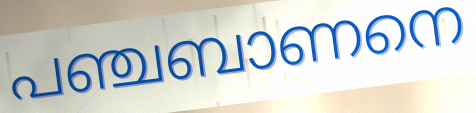
പഞ്ചബാണനെ